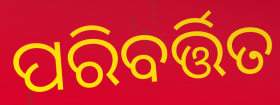
ପରିବର୍ତ୍ତିତ